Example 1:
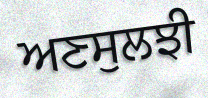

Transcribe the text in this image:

ਅਣਸੁਲਝੀ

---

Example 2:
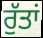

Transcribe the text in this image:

ਰੁੱਤਾਂ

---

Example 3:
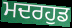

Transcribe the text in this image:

ਮਦਰਹੁਡ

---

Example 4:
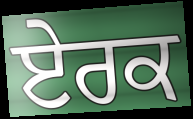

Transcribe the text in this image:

ਏਰਕ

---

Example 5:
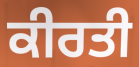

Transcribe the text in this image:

ਕੀਰਤੀ